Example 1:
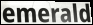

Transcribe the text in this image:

emerald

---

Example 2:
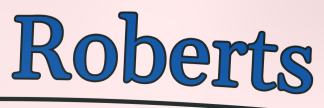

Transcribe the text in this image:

Roberts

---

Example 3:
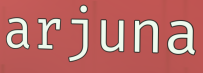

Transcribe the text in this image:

arjuna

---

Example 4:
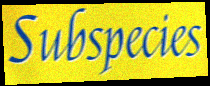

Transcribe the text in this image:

Subspecies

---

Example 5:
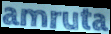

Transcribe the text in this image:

amruta